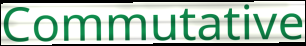
Commutative